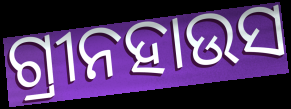
ଗ୍ରୀନହାଉସ